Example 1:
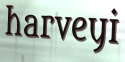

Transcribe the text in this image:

harveyi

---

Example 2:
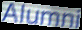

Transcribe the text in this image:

Alumni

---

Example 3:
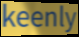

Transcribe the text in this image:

keenly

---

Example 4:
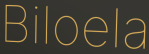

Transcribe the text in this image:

Biloela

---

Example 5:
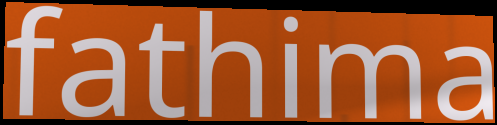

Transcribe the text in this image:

fathima